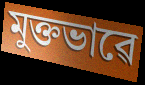
মুক্তভাৱে